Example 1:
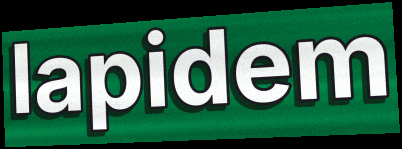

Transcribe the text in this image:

lapidem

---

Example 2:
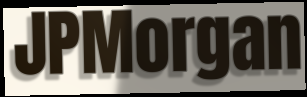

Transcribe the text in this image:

JPMorgan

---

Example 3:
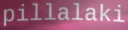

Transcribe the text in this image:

pillalaki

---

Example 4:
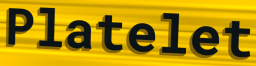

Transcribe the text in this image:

Platelet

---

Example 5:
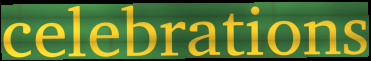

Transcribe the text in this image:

celebrations